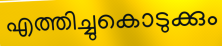
എത്തിച്ചുകൊടുക്കും